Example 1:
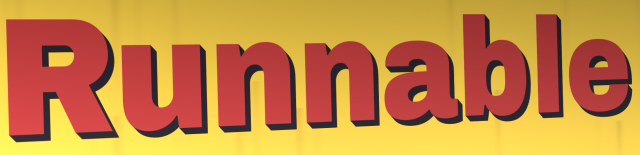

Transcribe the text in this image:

Runnable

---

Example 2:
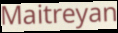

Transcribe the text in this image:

Maitreyan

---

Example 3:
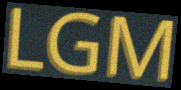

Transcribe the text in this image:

LGM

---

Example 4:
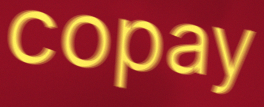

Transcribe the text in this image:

copay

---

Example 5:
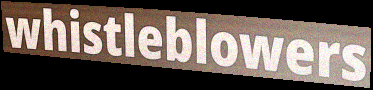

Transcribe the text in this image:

whistleblowers